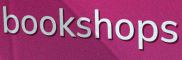
bookshops